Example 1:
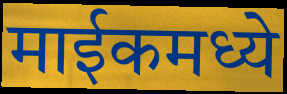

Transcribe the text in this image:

माईकमध्ये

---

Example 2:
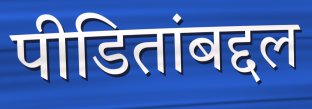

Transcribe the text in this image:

पीडितांबद्दल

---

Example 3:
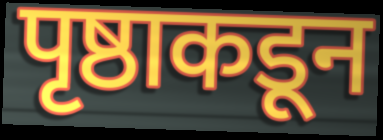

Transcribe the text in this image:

पृष्ठाकडून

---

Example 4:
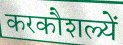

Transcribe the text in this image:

करकौशल्यें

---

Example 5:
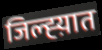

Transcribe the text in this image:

जिल्ह्य़ात